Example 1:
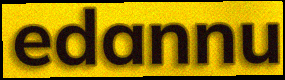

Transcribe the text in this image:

edannu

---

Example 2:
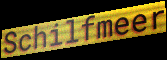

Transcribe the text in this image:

Schilfmeer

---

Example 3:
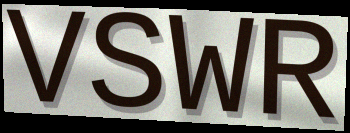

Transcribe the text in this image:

VSWR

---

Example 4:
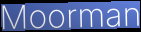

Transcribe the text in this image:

Moorman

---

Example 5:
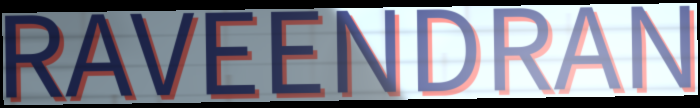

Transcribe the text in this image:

RAVEENDRAN